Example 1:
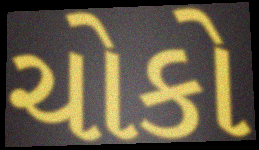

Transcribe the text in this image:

ચોકો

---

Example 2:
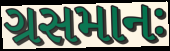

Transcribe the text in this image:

ગ્રસમાનઃ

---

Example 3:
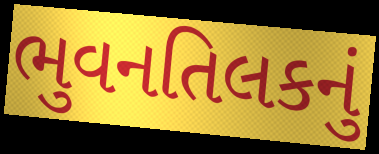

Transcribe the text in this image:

ભુવનતિલકનું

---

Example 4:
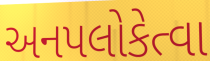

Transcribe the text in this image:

અનપલોકેત્વા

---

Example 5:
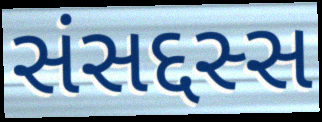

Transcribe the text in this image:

સંસદ્દસ્સ